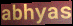
abhyas